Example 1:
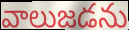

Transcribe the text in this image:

వాలుజడను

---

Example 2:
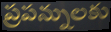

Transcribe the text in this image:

ప్రపన్నులకు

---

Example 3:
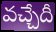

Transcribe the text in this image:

వచ్చేదీ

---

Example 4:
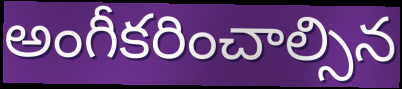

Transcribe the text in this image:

అంగీకరించాల్సిన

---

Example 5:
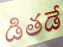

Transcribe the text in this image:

డితడే